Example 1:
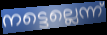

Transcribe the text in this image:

നട്ടെല്ലെന്ന്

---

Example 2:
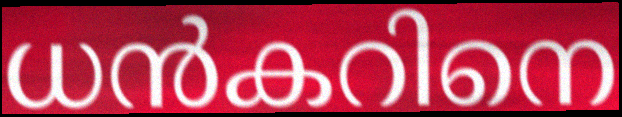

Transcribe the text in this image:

ധൻകറിനെ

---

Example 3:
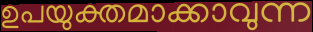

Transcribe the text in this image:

ഉപയുക്തമാക്കാവുന്ന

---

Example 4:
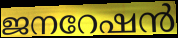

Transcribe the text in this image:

ജനറേഷൻ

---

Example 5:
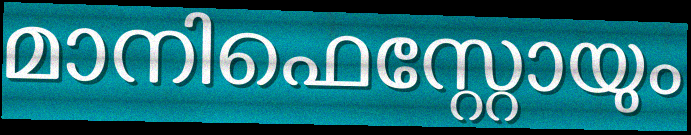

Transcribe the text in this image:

മാനിഫെസ്റ്റോയും